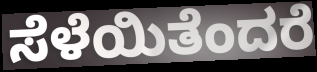
ಸೆಳೆಯಿತೆಂದರೆ